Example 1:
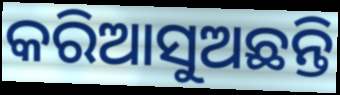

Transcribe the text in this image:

କରିଆସୁଅଛନ୍ତି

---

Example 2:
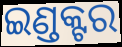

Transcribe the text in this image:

ଇଣ୍ଡକ୍ଟର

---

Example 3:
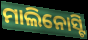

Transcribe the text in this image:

ମାଲିନୋସ୍ଟି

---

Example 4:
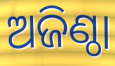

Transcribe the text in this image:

ଅଜିଣ୍ଠା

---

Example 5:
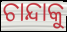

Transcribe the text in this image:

ଚାନ୍ଦାକୁ